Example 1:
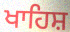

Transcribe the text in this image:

ਖਾਹਿਸ਼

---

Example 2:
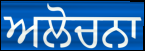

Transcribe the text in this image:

ਅਲੋਚਨਾ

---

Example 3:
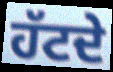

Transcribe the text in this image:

ਹੱਟਦੇ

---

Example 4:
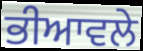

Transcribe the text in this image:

ਭੀਆਵਲੇ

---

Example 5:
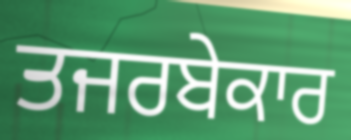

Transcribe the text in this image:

ਤਜਰਬੇਕਾਰ